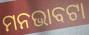
ମନଭାବଟା